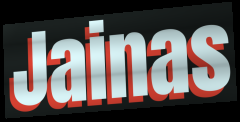
Jainas